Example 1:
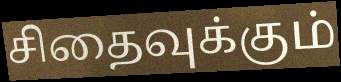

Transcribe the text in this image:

சிதைவுக்கும்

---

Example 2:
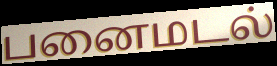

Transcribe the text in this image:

பனைமடல்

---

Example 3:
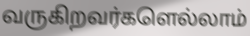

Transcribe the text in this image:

வருகிறவர்களெல்லாம்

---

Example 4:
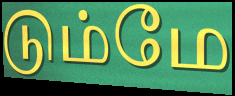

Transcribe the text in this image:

டும்மே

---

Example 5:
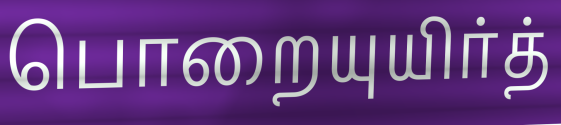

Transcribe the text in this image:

பொறையுயிர்த்